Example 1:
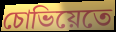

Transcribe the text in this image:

চোভিয়েতে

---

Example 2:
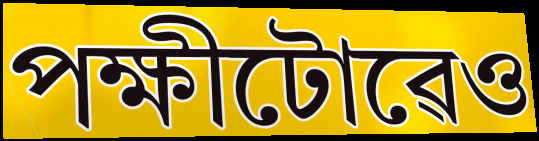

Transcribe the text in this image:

পক্ষীটোৱেও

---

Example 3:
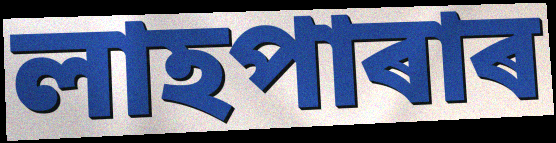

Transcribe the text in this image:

লাহপাৰাৰ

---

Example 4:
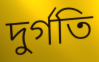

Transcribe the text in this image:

দুৰ্গতি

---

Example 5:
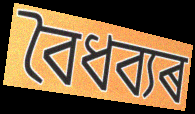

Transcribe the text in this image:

বৈধব্যৰ